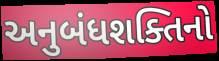
અનુબંધશક્તિનો